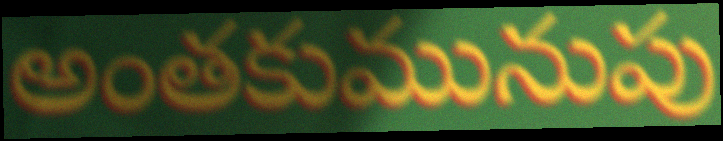
అంతకుమునుపు